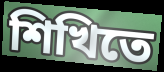
শিখিতে